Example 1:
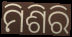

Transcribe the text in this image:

ମିଶିରି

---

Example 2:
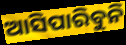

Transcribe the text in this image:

ଆସିପାରିବୁନି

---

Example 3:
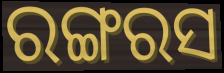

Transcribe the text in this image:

ରଙ୍ଗରସ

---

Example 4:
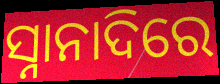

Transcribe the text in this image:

ସ୍ନାନାଦିରେ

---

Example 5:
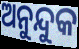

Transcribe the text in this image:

ଅନୁନ୍ଦୁକ